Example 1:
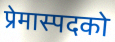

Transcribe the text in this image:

प्रेमास्पदको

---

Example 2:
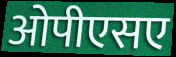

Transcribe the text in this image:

ओपीएसए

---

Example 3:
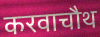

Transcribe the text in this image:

करवाचौथ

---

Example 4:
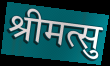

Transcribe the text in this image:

श्रीमत्सु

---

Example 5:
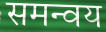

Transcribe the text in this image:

समन्वय